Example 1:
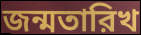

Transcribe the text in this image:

জন্মতারিখ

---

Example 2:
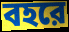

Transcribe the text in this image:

বহরে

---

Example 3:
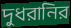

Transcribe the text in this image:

দুধরানির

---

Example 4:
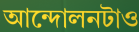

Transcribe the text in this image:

আন্দোলনটাও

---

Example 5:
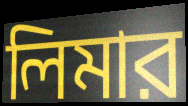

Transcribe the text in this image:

লিমার